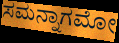
ಸಮನ್ನಾಗಮೋ